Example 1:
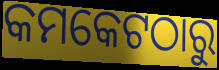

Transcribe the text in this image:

କମକେଟଠାରୁ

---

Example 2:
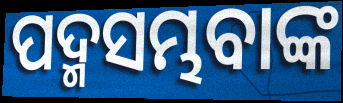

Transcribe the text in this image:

ପଦ୍ମସମ୍ଭବାଙ୍କ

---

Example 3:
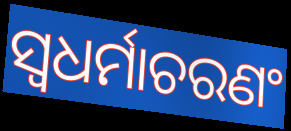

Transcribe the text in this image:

ସ୍ୱଧର୍ମାଚରଣଂ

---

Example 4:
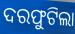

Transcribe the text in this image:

ଦରଫୁଟିଲା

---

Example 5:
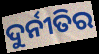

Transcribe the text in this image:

ଦୁର୍ନୀତିର